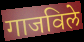
गाजविले